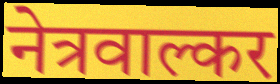
नेत्रवाल्कर